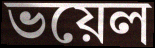
ভয়েল